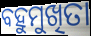
ବହୁମୁଖିତା